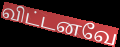
விட்டனவே